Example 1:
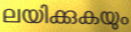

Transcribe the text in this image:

ലയിക്കുകയും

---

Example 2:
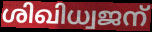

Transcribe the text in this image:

ശിഖിധ്വജന്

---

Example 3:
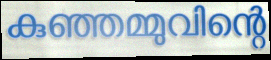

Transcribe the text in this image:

കുഞ്ഞമ്മുവിന്റെ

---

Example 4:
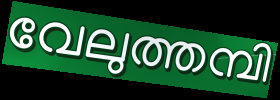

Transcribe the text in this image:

വേലുത്തമ്പി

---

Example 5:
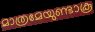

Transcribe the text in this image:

മാത്രമേയുണ്ടാകൂ